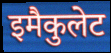
इमैकुलेट